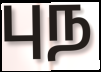
புந